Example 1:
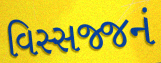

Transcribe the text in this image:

વિસ્સજ્જનં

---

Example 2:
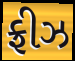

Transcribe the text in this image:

ફ્રીઝ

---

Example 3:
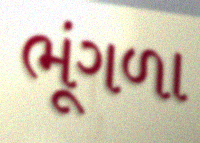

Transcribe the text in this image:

ભૂંગળા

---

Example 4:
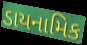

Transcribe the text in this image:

ડાયનામિક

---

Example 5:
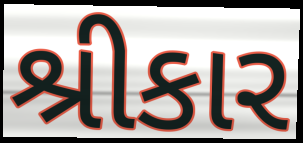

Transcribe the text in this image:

શ્રીકાર